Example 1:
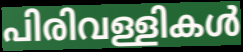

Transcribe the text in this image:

പിരിവള്ളികൾ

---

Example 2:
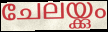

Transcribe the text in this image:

ചേലയ്ക്കും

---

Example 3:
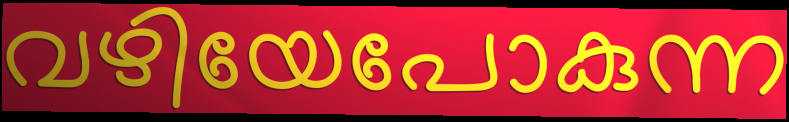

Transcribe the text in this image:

വഴിയേപോകുന്ന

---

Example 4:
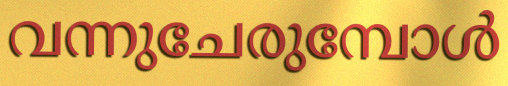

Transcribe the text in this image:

വന്നുചേരുമ്പോൾ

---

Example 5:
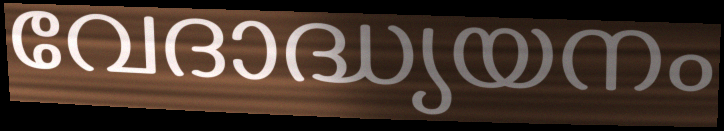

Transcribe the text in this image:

വേദാദ്ധ്യയനം